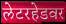
लेटरहेडवर